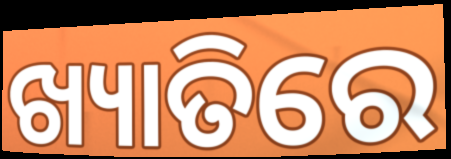
ଖ୍ୟାତିରେ